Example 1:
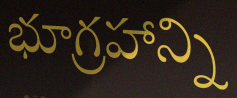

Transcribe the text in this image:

భూగ్రహాన్ని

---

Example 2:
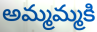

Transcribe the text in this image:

అమ్మమ్మకి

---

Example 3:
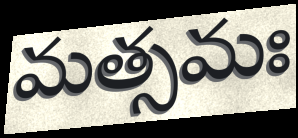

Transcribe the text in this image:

మత్సమః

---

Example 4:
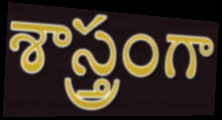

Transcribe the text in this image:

శాస్త్రంగా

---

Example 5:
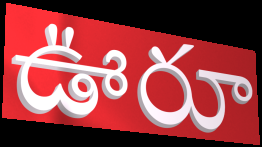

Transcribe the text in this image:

ఊరూ